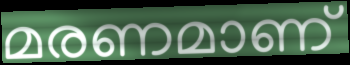
മരണമാണ്